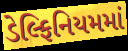
ડેલ્ફિનિયમમાં